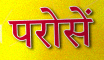
परोसें